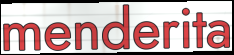
menderita